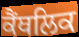
ਕੈਂਥਲਿਕ